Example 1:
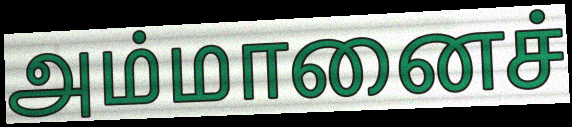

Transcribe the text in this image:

அம்மானைச்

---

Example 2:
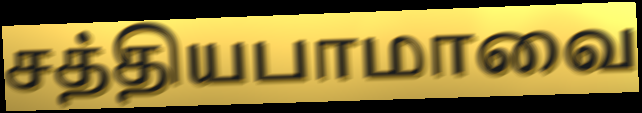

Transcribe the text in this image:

சத்தியபாமாவை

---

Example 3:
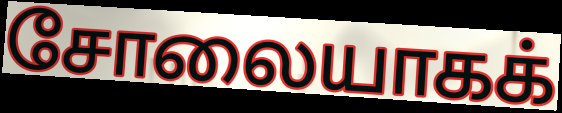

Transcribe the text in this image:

சோலையாகக்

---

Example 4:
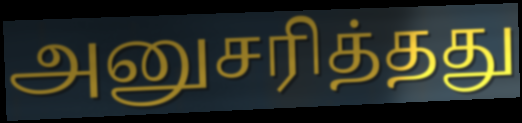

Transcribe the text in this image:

அனுசரித்தது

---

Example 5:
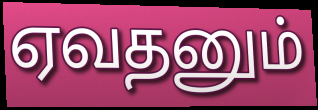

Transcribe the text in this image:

ஏவதனும்